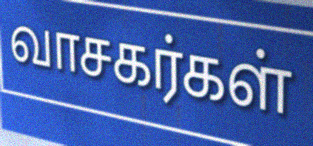
வாசகர்கள்